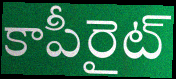
కాపీరైట్